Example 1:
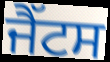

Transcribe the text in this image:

ਜੈੱਟਸ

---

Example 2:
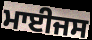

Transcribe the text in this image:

ਮਾਈਜਸ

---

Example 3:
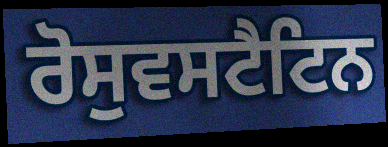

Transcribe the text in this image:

ਰੋਸੁਵਸਟੈਟਿਨ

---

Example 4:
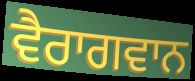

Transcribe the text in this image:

ਵੈਰਾਗਵਾਨ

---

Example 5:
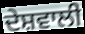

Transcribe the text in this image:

ਦੇਸ਼ਵਾਲੀ